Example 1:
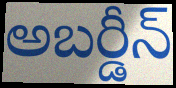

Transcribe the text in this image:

అబర్డీన్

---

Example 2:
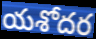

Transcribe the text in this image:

యశోదర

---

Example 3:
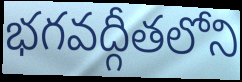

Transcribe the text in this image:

భగవద్గీతలోని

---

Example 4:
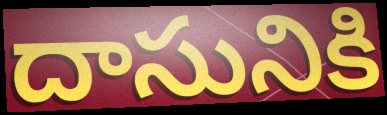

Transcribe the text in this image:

దాసునికి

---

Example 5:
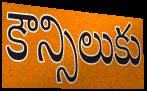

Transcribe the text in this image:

కౌన్సిలుకు